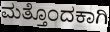
ಮತ್ತೊಂದಕಾಗಿ